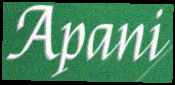
Apani